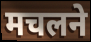
मचलने